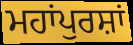
ਮਹਾਂਪੁਰਸ਼ਾਂ